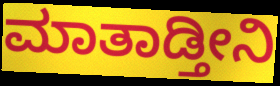
ಮಾತಾಡ್ತೀನಿ